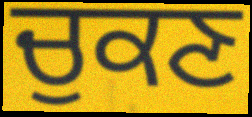
ਚੁਕਣ